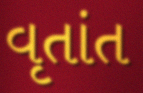
વૃતાંત